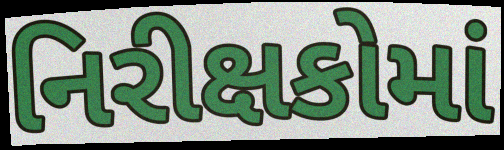
નિરીક્ષકોમાં